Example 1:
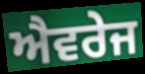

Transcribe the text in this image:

ਐਵਰੇਜ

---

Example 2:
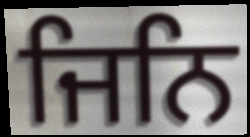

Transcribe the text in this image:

ਜਿਨਿ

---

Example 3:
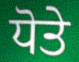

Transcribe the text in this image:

ਧੋਤੇ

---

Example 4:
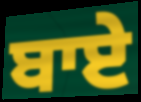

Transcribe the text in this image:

ਬਾਏ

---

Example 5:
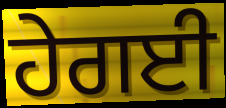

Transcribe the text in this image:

ਹੇਗਈ